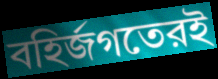
বহির্জগতেরই